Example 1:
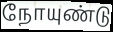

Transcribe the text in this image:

நோயுண்டு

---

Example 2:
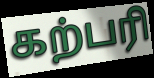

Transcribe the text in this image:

கற்பரி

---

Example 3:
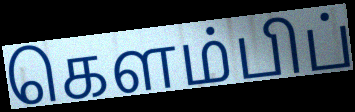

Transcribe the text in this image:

கௌம்பிப்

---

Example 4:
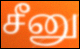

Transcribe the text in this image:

சீனு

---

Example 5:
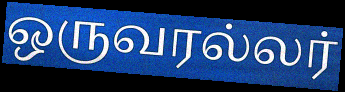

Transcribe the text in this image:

ஒருவரல்லர்